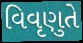
વિવૃણુતે